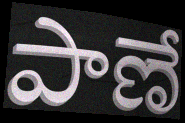
పాణే